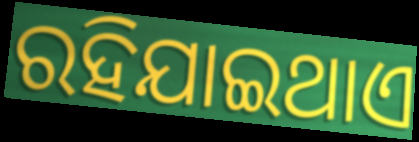
ରହିଯାଇଥାଏ